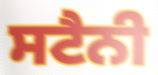
ਸਟੈਨੀ